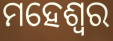
ମହେଶ୍ଵର